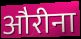
औरीना